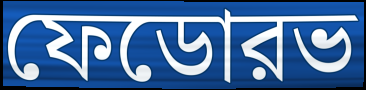
ফেডোরভ